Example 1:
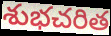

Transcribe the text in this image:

శుభచరిత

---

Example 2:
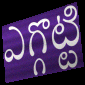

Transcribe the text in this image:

ఎగ్గొట్టి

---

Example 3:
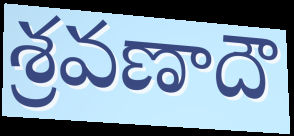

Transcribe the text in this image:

శ్రవణాదౌ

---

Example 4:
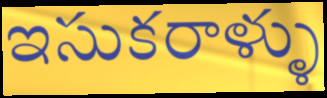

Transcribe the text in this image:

ఇసుకరాళ్ళు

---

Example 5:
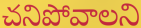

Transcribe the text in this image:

చనిపోవాలని